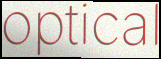
optical